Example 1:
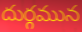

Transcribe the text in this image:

దుర్గమున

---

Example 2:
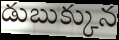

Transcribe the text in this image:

డుబుక్కున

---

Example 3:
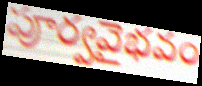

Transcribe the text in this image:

పూర్వవైభవం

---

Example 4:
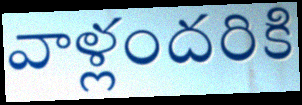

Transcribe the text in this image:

వాళ్లందరికి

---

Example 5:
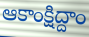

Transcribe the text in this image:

ఆకాంక్షిద్దాం